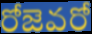
రోజెవరో